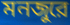
মনজুরে